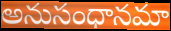
అనుసంధానమా